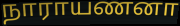
நாராயணனா